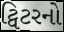
ટ્વિટરનો